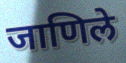
जाणिले